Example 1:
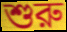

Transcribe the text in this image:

শুরু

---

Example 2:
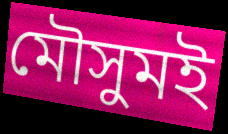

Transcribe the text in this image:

মৌসুমই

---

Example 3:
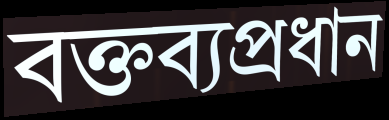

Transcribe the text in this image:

বক্তব্যপ্রধান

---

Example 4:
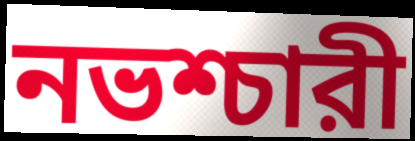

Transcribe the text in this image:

নভশ্চারী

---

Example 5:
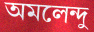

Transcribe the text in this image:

অমলেন্দু